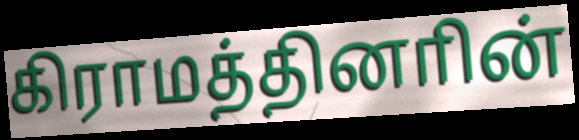
கிராமத்தினரின்